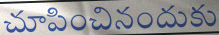
చూపించినందుకు